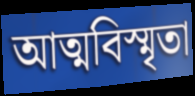
আত্মবিস্মৃতা